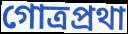
গোত্রপ্রথা